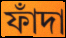
ফাঁদা